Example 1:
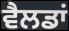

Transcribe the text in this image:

ਵੈਲਡਾਂ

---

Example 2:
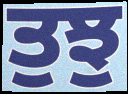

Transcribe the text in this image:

ਤੁਝੁ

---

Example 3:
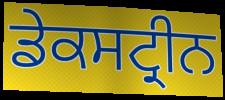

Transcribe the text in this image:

ਡੇਕਸਟ੍ਰੀਨ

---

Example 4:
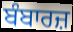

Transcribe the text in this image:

ਬੰਬਾਰਜ਼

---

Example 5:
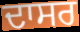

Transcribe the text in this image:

ਦਾਸਰ